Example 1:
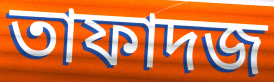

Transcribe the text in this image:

তাফাদজ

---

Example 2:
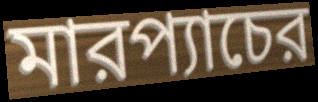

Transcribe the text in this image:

মারপ্যাচের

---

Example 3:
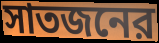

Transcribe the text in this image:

সাতজনের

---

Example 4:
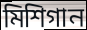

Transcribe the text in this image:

মিশিগান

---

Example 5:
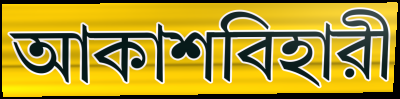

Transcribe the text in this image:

আকাশবিহারী